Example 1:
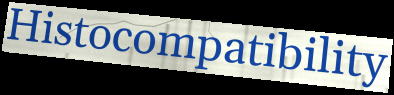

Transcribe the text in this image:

Histocompatibility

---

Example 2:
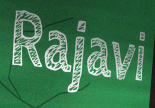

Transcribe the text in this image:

Rajavi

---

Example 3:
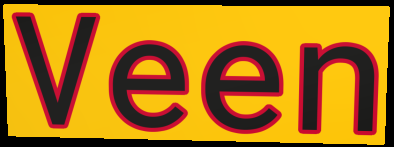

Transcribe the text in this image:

Veen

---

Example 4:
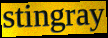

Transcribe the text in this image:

stingray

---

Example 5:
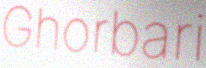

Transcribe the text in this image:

Ghorbari